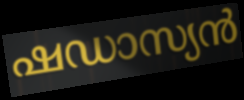
ഷഡാസ്യൻ